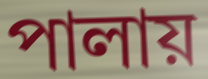
পালায়